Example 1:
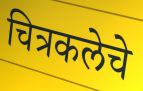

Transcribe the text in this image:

चित्रकलेचे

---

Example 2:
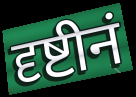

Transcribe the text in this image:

दृष्टीनं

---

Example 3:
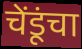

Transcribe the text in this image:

चेंडूंचा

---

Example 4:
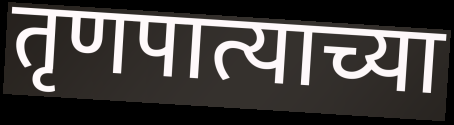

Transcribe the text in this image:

तृणपात्याच्या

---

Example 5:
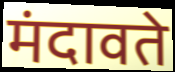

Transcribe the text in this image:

मंदावते